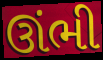
ઊંભી